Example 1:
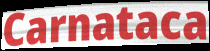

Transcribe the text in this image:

Carnataca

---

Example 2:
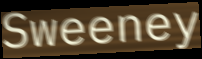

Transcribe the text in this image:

Sweeney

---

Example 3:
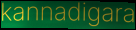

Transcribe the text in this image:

kannadigara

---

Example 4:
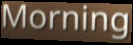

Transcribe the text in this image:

Morning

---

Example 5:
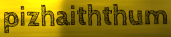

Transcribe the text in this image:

pizhaiththum